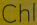
Chl